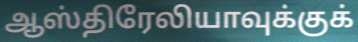
ஆஸ்திரேலியாவுக்குக்